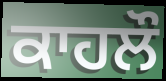
ਕਾਹਲੌ